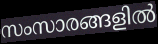
സംസാരങ്ങളിൽ